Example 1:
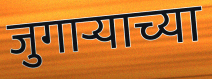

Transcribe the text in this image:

जुगाऱ्याच्या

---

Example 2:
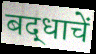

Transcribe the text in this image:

बद्धाचें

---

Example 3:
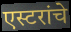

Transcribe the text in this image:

एस्टरांचे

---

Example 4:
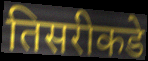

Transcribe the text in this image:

तिसरीकडे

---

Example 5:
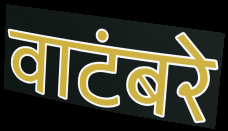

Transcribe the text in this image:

वाटंबरे